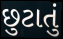
છુટાતું